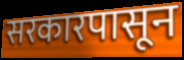
सरकारपासून